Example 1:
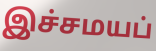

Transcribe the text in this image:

இச்சமயப்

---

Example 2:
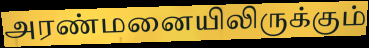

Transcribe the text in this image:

அரண்மனையிலிருக்கும்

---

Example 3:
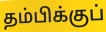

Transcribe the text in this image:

தம்பிக்குப்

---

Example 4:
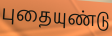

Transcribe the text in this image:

புதையுண்டு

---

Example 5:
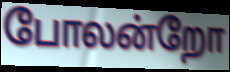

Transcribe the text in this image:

போலன்றோ